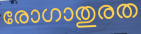
രോഗാതുരത